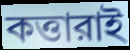
কত্তারাই